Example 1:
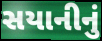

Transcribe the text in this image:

સયાનીનું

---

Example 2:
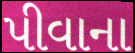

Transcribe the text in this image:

પીવાના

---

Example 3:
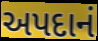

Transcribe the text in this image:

અપદાનં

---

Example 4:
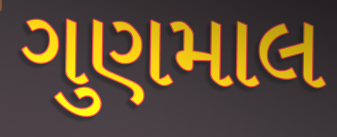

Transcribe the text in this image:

ગુણમાલ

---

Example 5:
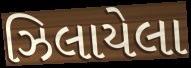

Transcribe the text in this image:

ઝિલાયેલા